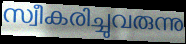
സ്വീകരിച്ചുവരുന്നു